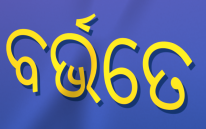
ବର୍ଭତେ